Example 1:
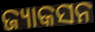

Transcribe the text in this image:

ଜ୍ୟାକସନ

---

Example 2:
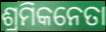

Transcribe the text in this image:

ଶ୍ରମିକନେତା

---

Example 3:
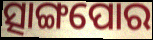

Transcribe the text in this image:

ତ୍ସାଙ୍ଗପୋର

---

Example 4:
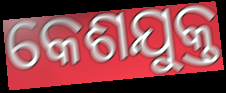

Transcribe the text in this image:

କେଶଯୁକ୍ତ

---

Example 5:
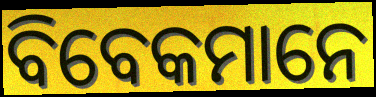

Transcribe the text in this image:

ବିବେକମାନେ